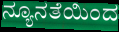
ನ್ಯೂನತೆಯಿಂದ